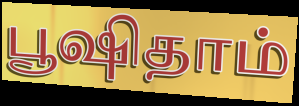
பூஷிதாம்